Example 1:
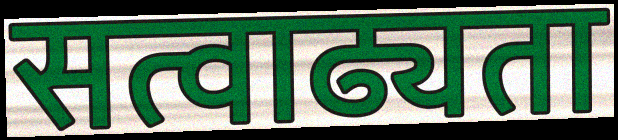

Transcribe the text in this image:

सत्वाढ्यता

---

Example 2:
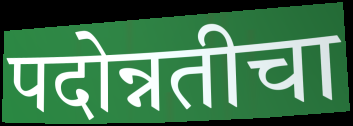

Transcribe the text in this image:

पदोन्नतीचा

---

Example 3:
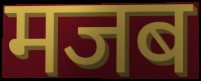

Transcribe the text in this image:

मजब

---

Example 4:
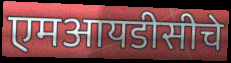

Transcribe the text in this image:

एमआयडीसीचे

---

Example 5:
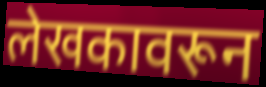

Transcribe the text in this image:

लेखकावरून